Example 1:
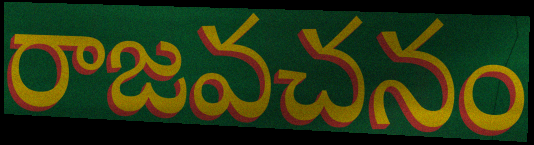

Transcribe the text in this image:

రాజవచనం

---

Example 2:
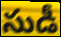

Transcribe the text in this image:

సుడీ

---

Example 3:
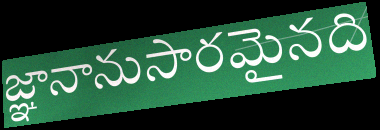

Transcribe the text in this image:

జ్ఞానానుసారమైనది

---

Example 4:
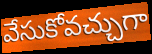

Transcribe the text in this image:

వేసుకోవచ్చుగా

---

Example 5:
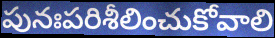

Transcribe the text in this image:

పునఃపరిశీలించుకోవాలి